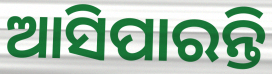
ଆସିପାରନ୍ତି